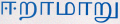
ஈறாமாறு